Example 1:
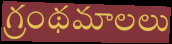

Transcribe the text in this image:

గ్రంథమాలలు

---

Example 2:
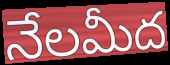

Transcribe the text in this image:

నేలమీద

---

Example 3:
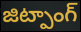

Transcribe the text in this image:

జిట్పాంగ్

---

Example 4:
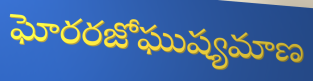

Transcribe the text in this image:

ఘోరరజోఘుష్యమాణ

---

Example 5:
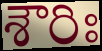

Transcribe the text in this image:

శౌరిః